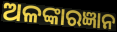
ଅଳଙ୍କାରଜ୍ଞାନ